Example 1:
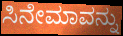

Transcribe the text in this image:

ಸಿನೇಮಾವನ್ನು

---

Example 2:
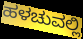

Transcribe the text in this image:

ಹಳಚುವಲ್ಲಿ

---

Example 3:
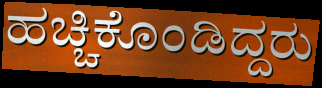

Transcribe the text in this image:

ಹಚ್ಚಿಕೊಂಡಿದ್ದರು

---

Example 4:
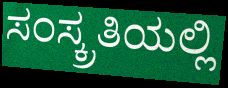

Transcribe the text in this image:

ಸಂಸ್ಕ್ರತಿಯಲ್ಲಿ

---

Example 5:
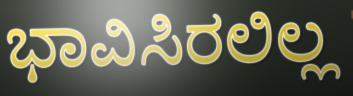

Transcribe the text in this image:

ಭಾವಿಸಿರಲಿಲ್ಲ